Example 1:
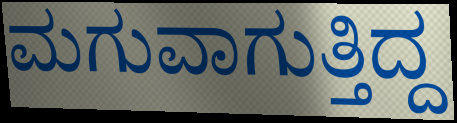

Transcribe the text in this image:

ಮಗುವಾಗುತ್ತಿದ್ದ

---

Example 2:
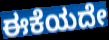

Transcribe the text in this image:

ಈಕೆಯದೇ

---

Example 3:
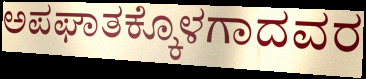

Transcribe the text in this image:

ಅಪಘಾತಕ್ಕೊಳಗಾದವರ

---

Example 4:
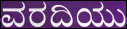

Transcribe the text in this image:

ವರದಿಯು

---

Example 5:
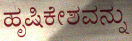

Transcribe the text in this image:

ಹೃಷಿಕೇಶವನ್ನು